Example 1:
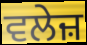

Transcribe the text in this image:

ਵਲੇਜ਼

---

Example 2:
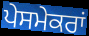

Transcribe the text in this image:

ਪੇਸਮੇਕਰਾਂ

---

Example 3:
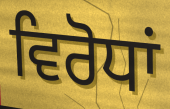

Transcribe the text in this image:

ਵਿਰੋਧਾਂ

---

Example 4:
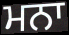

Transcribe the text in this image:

ਮਨਾ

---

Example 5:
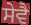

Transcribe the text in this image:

ਸੇਵੈ